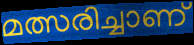
മത്സരിച്ചാണ്